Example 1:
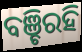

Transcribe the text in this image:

ବଞ୍ଚିରହି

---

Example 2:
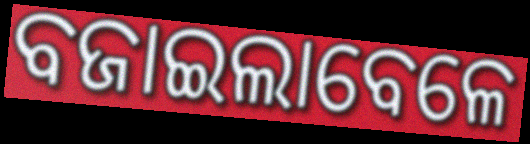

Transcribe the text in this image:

ବଜାଇଲାବେଳେ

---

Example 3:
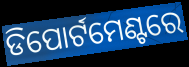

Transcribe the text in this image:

ଡିପୋର୍ଟମେଣ୍ଟରେ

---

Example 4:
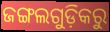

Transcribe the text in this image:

ଜଙ୍ଗଲଗୁଡ଼ିକରୁ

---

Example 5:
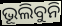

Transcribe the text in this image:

ଭୂଲିବୁନି